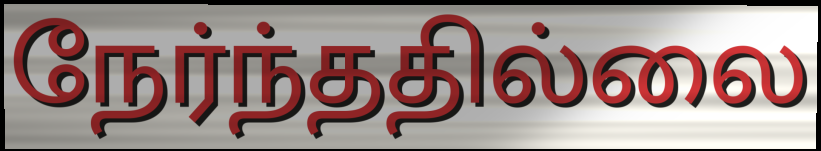
நேர்ந்ததில்லை